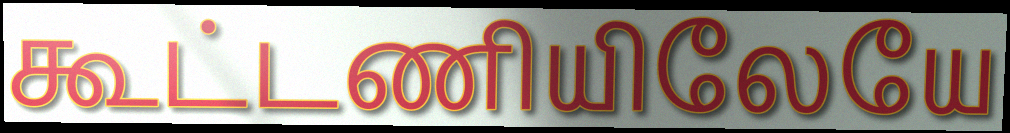
கூட்டணியிலேயே